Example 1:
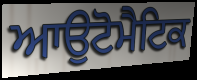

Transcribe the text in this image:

ਆਉਟੋਮੈਟਿਕ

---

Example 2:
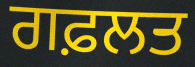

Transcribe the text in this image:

ਗਫ਼ਲਤ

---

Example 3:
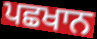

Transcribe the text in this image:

ਪਛਖਾਨ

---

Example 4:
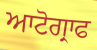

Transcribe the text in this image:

ਆਟੋਗ੍ਰਾਫ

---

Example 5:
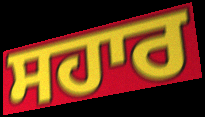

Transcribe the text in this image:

ਸਹਾਰ